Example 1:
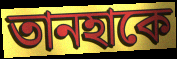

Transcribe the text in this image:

তানহাকে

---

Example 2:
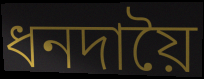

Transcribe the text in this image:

ধনদায়ৈ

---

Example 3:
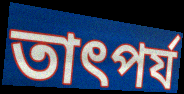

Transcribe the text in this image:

তাৎপর্য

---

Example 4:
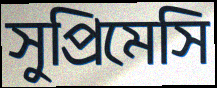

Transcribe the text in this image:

সুপ্রিমেসি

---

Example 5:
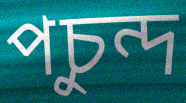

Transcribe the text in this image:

পচুন্দ